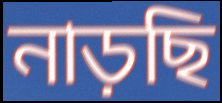
নাড়ছি